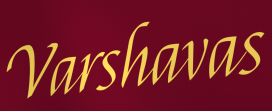
Varshavas